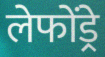
लेफोंड्रे